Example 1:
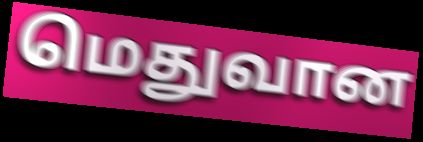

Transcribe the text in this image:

மெதுவான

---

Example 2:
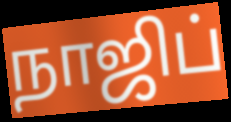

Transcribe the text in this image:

நாஜிப்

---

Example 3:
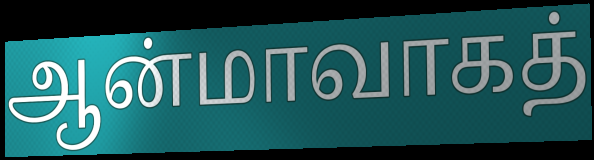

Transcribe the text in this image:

ஆன்மாவாகத்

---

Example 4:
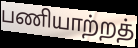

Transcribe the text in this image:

பணியாற்றத்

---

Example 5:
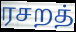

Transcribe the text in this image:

ரசறத்